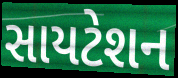
સાયટેશન